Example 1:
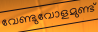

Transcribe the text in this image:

വേണ്ടുവോളമുണ്ട്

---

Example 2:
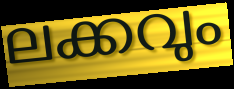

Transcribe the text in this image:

ലക്കവും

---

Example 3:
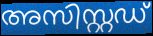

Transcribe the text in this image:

അസിസ്റ്റഡ്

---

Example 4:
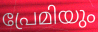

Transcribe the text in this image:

പ്രേമിയും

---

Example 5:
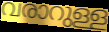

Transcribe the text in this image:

വരാറുള്ള